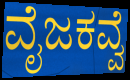
ವೈಜಕವ್ವೆ